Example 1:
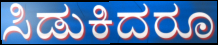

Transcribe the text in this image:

ಸಿಡುಕಿದರೂ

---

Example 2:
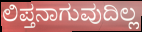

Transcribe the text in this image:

ಲಿಪ್ತನಾಗುವುದಿಲ್ಲ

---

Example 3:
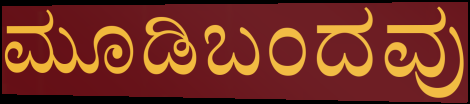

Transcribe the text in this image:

ಮೂಡಿಬಂದವು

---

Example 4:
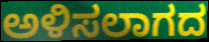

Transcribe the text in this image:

ಅಳಿಸಲಾಗದ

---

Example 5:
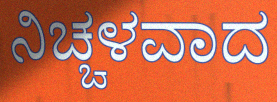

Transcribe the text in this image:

ನಿಚ್ಚಳವಾದ